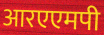
आरएएमपी